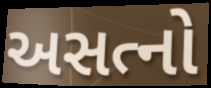
અસત્નો